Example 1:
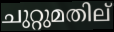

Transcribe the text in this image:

ചുറ്റുമതില്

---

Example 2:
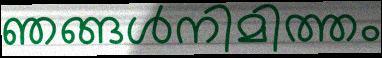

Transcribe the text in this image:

ഞങ്ങൾനിമിത്തം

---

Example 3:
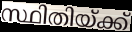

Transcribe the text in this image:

സ്ഥിതിയ്ക്ക്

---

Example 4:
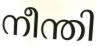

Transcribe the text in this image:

നീന്തി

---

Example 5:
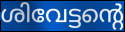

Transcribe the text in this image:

ശിവേട്ടന്റെ